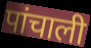
पांचाली